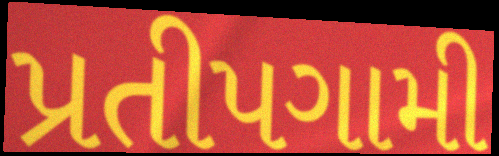
પ્રતીપગામી